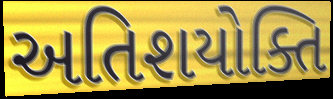
અતિશયોક્તિ